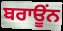
ਬਰਾਊਂਨ